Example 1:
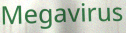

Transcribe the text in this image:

Megavirus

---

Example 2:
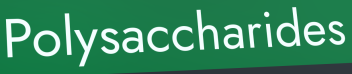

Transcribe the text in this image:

Polysaccharides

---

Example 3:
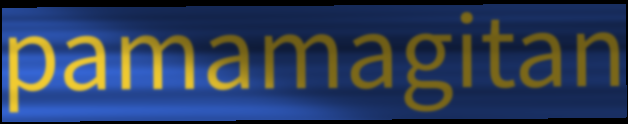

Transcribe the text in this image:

pamamagitan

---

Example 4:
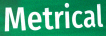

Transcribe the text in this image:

Metrical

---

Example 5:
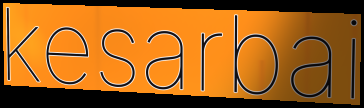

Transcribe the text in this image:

kesarbai